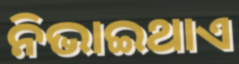
ନିଭାଇଥାଏ